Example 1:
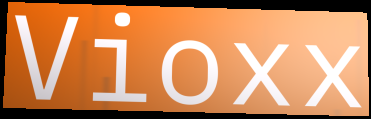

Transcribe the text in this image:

Vioxx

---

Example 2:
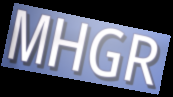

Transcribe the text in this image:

MHGR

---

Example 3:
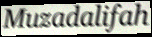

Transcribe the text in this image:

Muzadalifah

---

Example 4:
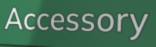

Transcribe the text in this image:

Accessory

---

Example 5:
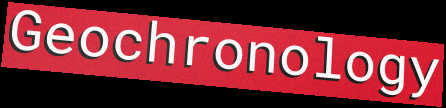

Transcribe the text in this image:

Geochronology